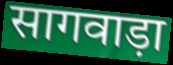
सागवाड़ा